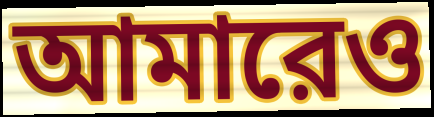
আমারেও